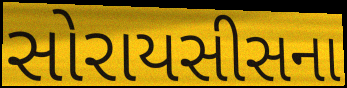
સોરાયસીસના